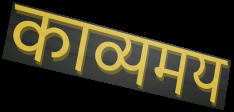
काव्यमय